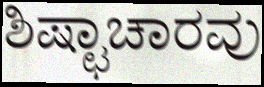
ಶಿಷ್ಟಾಚಾರವು